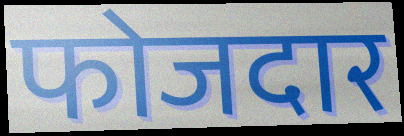
फोजदार